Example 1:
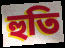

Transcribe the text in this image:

হুতি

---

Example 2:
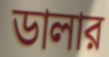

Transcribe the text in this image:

ডালার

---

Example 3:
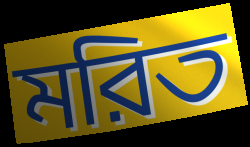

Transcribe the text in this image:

মরিত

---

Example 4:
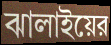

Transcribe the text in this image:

ঝালাইয়ের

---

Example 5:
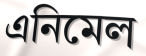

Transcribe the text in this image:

এনিমেল